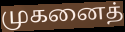
முகனைத்